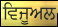
ਵਿਜੂਅਲ